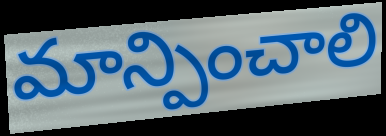
మాన్పించాలి